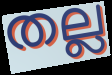
തല്ല